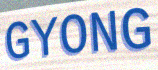
GYONG